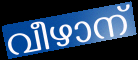
വീഴാന്